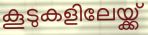
കൂടുകളിലേയ്ക്ക്